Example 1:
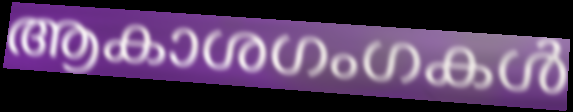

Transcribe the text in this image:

ആകാശഗംഗകൾ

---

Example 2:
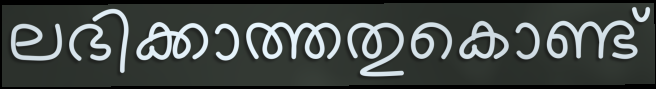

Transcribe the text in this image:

ലഭിക്കാത്തതുകൊണ്ട്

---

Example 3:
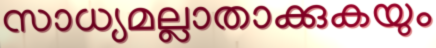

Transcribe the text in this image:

സാധ്യമല്ലാതാക്കുകയും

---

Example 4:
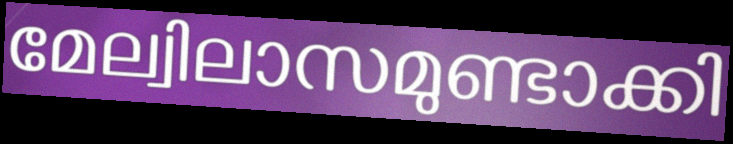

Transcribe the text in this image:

മേല്വിലാസമുണ്ടാക്കി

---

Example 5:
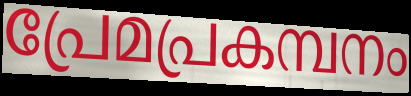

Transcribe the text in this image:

പ്രേമപ്രകമ്പനം